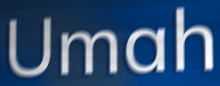
Umah